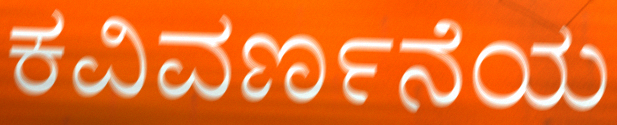
ಕವಿವರ್ಣನೆಯ